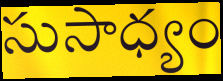
సుసాధ్యం